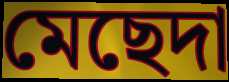
মেছেদা